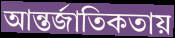
আন্তর্জাতিকতায়